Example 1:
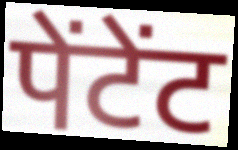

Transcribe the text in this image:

पेंटेंट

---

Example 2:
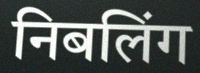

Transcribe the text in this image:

निबलिंग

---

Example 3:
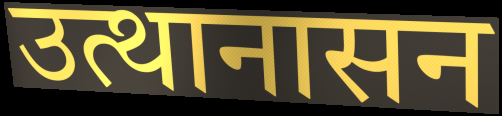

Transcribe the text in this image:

उत्थानासन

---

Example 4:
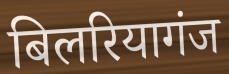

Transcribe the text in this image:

बिलरियागंज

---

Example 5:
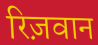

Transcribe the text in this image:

रिज़वान